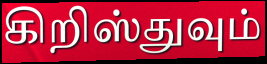
கிறிஸ்துவும்